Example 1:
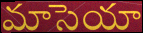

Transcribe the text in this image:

మాసెయా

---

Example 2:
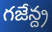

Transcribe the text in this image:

గజేన్ద్ర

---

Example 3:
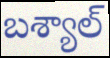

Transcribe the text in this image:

బశ్యాల్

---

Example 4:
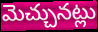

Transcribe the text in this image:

మెచ్చునట్లు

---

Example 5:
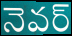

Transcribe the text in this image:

నెవర్